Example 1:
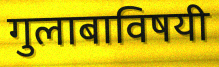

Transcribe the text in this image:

गुलाबाविषयी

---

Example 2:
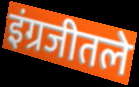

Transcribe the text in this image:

इंग्रजीतले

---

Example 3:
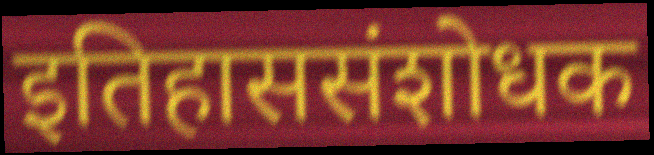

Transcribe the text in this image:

इतिहाससंशोधक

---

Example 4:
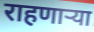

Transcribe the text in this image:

राहणार्‍या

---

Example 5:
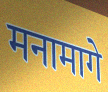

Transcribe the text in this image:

मनामागे